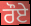
ਰੌਏ